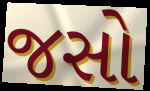
જસો